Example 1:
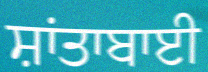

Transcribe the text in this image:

ਸ਼ਾਂਤਾਬਾਈ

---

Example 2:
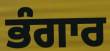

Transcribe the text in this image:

ਭੰਗਾਰ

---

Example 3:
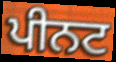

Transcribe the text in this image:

ਪੀਨਟ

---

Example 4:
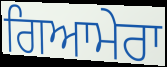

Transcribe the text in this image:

ਗਿਆਮੇਰਾ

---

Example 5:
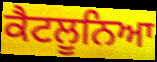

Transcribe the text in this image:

ਕੈਟਲੂਨਿਆ